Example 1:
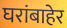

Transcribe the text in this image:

घरांबाहेर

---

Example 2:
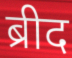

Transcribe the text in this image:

ब्रीद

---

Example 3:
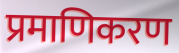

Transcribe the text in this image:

प्रमाणिकरण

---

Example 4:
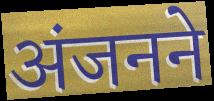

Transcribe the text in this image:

अंजनने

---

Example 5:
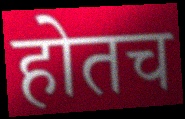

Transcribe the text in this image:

होतच